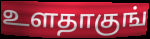
உளதாகுங்